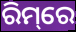
ରିମ୍‌ରେ